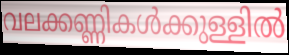
വലക്കണ്ണികൾക്കുള്ളിൽ